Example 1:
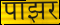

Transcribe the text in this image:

पाझर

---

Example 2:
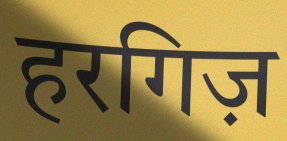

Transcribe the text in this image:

हरगिज़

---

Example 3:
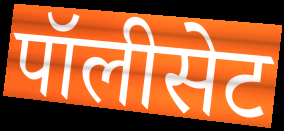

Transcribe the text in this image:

पॉलीसेट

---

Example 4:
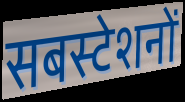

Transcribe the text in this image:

सबस्टेशनों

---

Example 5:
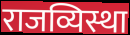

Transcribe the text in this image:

राजव्यिस्था